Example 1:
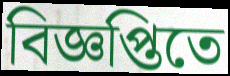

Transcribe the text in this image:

বিজ্ঞপ্তিতে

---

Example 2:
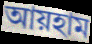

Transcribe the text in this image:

আয়হাম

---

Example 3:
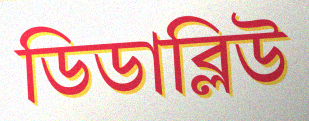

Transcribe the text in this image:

ডিডাব্লিউ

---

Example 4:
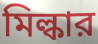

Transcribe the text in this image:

মিল্কার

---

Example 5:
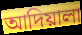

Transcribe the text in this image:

আদিয়ালা